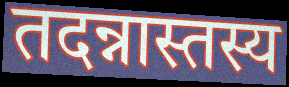
तदन्नास्तस्य